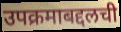
उपक्रमाबद्दलची